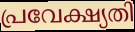
പ്രവേക്ഷ്യതി